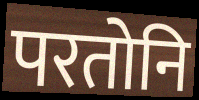
परतोनि